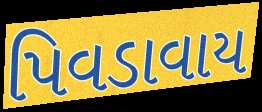
પિવડાવાય